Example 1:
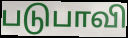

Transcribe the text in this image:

படுபாவி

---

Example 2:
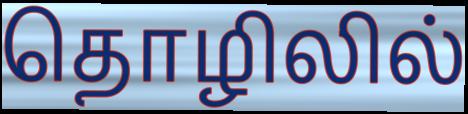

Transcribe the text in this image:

தொழிலில்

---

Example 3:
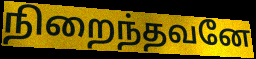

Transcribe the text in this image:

நிறைந்தவனே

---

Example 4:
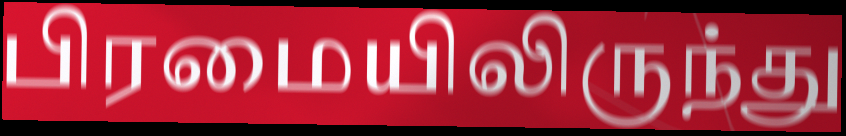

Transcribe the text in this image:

பிரமையிலிருந்து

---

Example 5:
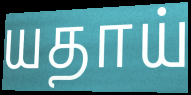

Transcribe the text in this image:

யதாய்